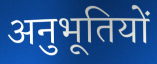
अनुभूतियों